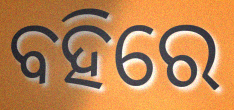
ବହିରେ